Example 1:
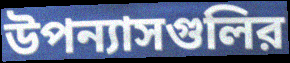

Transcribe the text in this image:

উপন্যাসগুলির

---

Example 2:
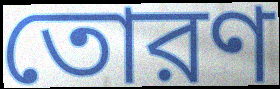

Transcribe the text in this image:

তোরণ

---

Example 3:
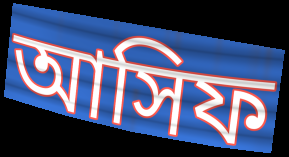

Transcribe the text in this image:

আসিফ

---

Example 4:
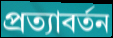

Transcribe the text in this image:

প্রত্যাবর্তন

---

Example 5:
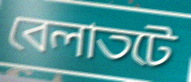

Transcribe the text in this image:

বেলাতটে